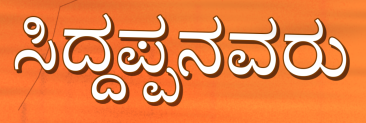
ಸಿದ್ದಪ್ಪನವರು